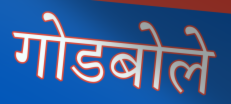
गोडबोले